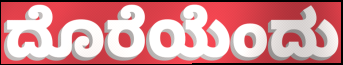
ದೊರೆಯೆಂದು